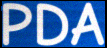
PDA